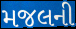
મજલની